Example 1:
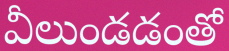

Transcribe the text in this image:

వీలుండడంతో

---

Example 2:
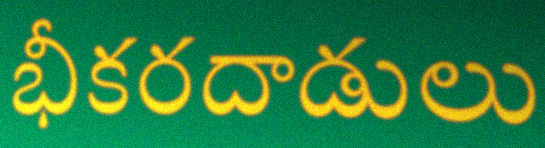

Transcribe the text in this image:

భీకరదాడులు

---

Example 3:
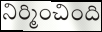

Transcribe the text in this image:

నిర్మించింది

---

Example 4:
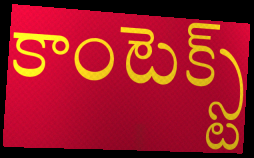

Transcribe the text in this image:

కాంటెక్స్ట్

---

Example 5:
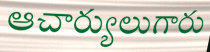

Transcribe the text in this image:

ఆచార్యులుగారు